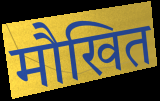
मौखित